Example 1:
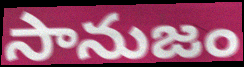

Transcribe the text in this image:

సానుజం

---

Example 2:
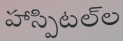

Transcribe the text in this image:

హాస్పిటల్‌ల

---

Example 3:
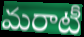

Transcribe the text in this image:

మరాటీ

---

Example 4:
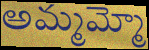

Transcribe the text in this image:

అమ్మమ్మో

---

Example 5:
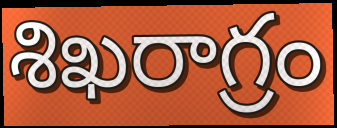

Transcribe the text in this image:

శిఖరాగ్రం